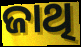
ଜାଥି